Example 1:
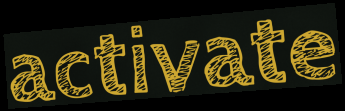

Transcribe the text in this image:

activate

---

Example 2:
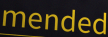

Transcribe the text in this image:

mended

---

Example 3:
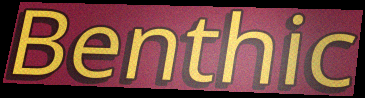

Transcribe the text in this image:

Benthic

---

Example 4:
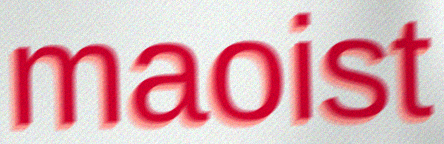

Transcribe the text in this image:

maoist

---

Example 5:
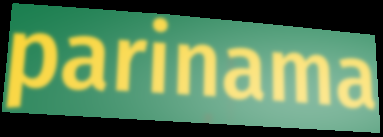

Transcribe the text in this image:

parinama